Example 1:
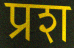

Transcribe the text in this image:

प्रश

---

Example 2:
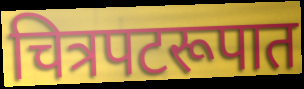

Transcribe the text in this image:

चित्रपटरूपात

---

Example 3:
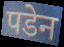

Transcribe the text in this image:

पडेन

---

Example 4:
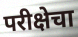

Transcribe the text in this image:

परीक्षेचा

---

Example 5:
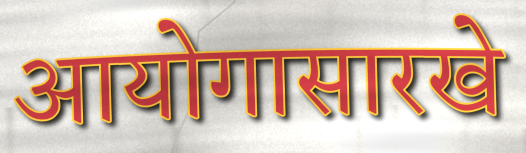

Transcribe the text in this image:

आयोगासारखे